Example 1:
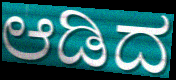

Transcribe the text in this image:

ಆಡಿದ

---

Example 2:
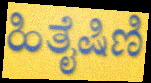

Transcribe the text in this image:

ಹಿತೈಷಿಣಿ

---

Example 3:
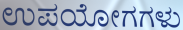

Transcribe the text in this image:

ಉಪಯೋಗಗಳು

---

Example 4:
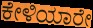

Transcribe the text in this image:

ಕೇಳಿಯಾರೇ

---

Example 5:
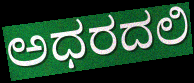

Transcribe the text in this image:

ಅಧರದಲಿ